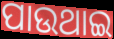
ପାଉଥାଇ